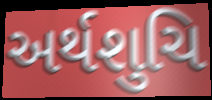
અર્થશુચિ